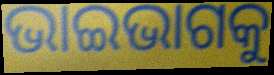
ଭାଇଭାଗକୁ